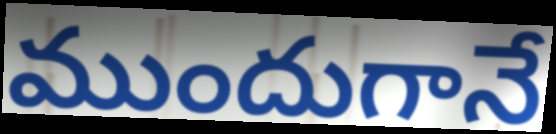
ముందుగానే